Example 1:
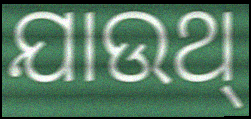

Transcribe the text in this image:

ଯାଉଥ୍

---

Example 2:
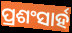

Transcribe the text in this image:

ପ୍ରଶଂସାର୍ହ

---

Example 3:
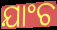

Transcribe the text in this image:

ଯାଂଚ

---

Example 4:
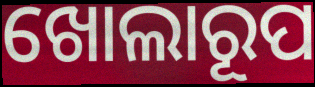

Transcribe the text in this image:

ଖୋଲାରୂପ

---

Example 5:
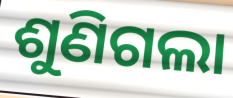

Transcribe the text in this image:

ଶୁଣିଗଲା